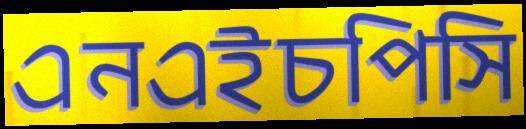
এনএইচপিসি